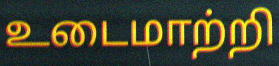
உடைமாற்றி